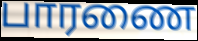
பாரணை